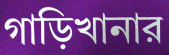
গাড়িখানার